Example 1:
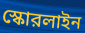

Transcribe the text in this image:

স্কোরলাইন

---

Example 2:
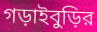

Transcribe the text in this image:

গড়াইবুড়ির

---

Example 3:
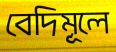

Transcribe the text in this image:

বেদিমূলে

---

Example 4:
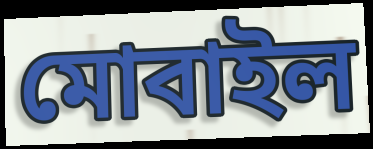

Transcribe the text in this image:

মোবাইল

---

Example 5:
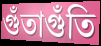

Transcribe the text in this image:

গুঁতাগুঁতি